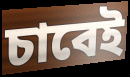
চাবেই